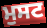
ਮੁਸਟ